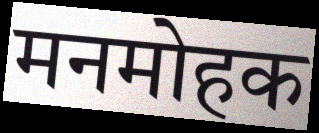
मनमोहक